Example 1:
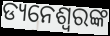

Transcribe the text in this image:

ଡ୍ୟନେଶ୍ୱରଙ୍କ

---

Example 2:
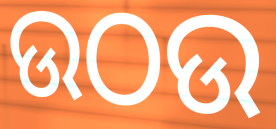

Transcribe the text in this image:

ଉଠଉ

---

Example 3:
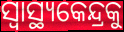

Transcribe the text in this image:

ସ୍ୱାସ୍ଥ୍ୟକେନ୍ଦ୍ରକୁ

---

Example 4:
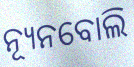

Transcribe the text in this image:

ନ୍ୟୂନବୋଲି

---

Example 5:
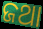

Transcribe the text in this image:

ଜଥା